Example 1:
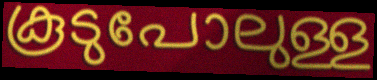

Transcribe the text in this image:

കൂടുപോലുള്ള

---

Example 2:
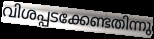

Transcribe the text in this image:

വിശപ്പടക്കേണ്ടതിന്നു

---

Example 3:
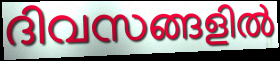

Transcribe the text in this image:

ദിവസങ്ങളിൽ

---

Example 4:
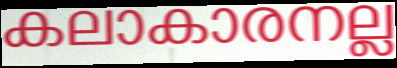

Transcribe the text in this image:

കലാകാരനല്ല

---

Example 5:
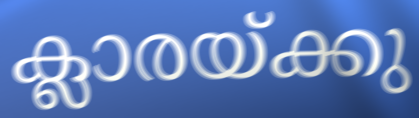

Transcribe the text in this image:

ക്ലാരയ്ക്കു